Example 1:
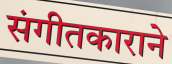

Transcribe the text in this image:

संगीतकाराने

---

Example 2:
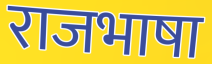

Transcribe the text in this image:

राजभाषा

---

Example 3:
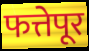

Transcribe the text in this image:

फत्तेपूर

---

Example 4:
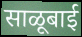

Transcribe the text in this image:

साळूबाई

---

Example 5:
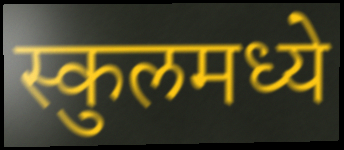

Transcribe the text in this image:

स्कुलमध्ये